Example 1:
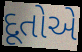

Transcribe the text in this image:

દૂતોએ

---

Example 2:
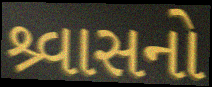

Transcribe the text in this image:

શ્ર્વાસનો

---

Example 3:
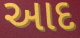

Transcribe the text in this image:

આદ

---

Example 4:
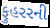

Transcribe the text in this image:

ફુહરરની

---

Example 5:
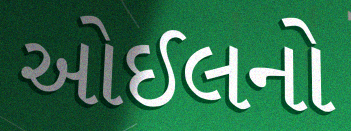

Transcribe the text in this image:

ઓઈલનો